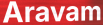
Aravam